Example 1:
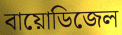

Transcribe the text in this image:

বায়োডিজেল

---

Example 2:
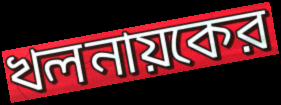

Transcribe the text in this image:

খলনায়কের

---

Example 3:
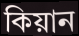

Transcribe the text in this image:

কিয়ান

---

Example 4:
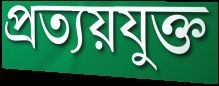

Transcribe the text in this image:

প্রত্যয়যুক্ত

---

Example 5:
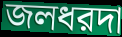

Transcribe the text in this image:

জলধরদা